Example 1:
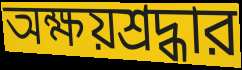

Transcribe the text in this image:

অক্ষয়শ্রদ্ধার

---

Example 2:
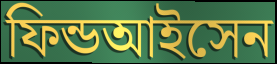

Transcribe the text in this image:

ফিন্ডআইসেন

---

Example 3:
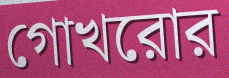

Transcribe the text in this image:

গোখরোর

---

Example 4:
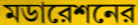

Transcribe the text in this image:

মডারেশনের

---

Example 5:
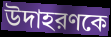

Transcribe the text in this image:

উদাহরণকে